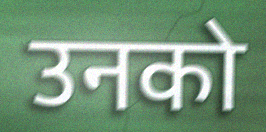
उनको